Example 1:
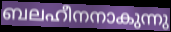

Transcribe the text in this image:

ബലഹീനനാകുന്നു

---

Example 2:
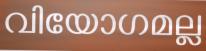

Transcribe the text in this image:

വിയോഗമല്ല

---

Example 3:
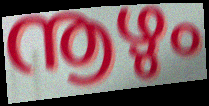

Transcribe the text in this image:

നൂഴും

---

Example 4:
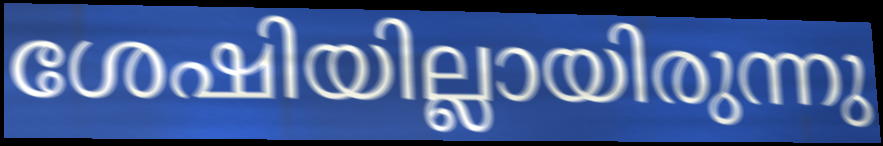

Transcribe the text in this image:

ശേഷിയില്ലായിരുന്നു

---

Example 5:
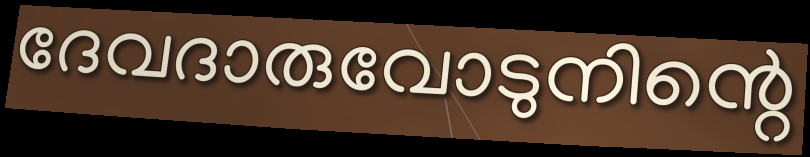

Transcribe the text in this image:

ദേവദാരുവോടുനിന്റെ